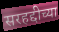
सरहद्दीच्या